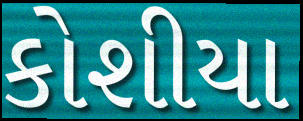
કોશીયા